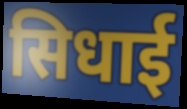
सिधाई